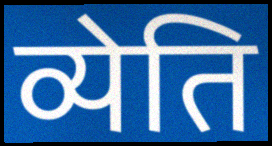
व्येति